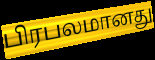
பிரபலமானது